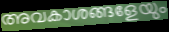
അവകാശങ്ങളേയും